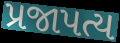
પ્રજાપત્ય